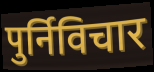
पुर्निविचार